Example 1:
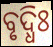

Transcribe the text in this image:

ବୃଦ୍ଧିଃ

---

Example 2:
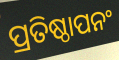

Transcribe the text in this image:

ପ୍ରତିଷ୍ଠାପନଂ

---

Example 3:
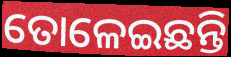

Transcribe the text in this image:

ତୋଳେଇଛନ୍ତି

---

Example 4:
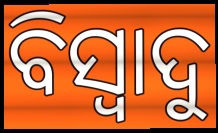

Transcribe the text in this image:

ବିସ୍ୱାଦୁ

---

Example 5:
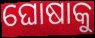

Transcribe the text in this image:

ଘୋଷାକୁ